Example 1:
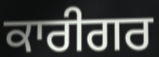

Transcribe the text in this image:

ਕਾਰੀਗਰ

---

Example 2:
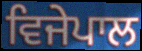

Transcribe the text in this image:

ਵਿਜੇਪਾਲ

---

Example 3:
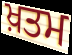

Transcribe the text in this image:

ਖ਼ਤਮ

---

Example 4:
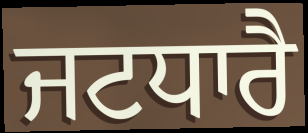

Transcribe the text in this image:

ਜਟਧਾਰੈ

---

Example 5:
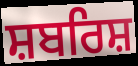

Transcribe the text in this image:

ਸ਼ਬਰਿਸ਼